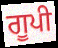
ਗੂਪੀ